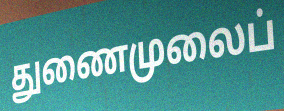
துணைமுலைப்